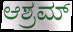
ಆಶ್ರಮ್